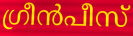
ഗ്രീൻപീസ്